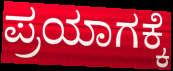
ಪ್ರಯಾಗಕ್ಕೆ